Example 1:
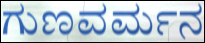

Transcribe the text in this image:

ಗುಣವರ್ಮನ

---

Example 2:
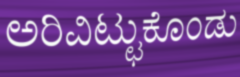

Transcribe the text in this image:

ಅರಿವಿಟ್ಟುಕೊಂಡು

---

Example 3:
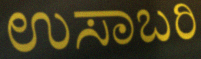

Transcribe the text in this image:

ಉಸಾಬರಿ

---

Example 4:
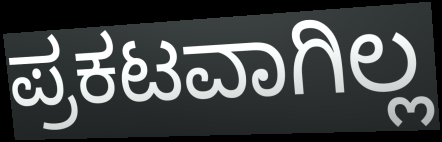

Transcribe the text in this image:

ಪ್ರಕಟವಾಗಿಲ್ಲ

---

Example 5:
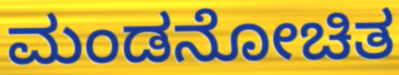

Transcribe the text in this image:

ಮಂಡನೋಚಿತ